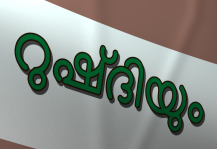
റുഷ്ദിയും